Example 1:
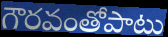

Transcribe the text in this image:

గౌరవంతోపాటు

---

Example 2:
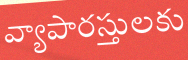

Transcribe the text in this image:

వ్యాపారస్తులకు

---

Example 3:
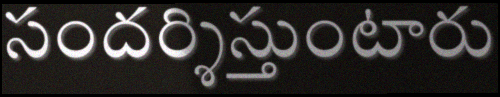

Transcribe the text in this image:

సందర్శిస్తుంటారు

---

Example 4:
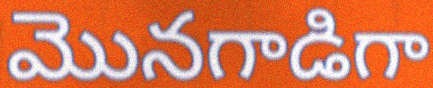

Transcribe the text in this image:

మొనగాడిగా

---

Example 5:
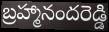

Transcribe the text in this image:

బ్రహ్మానందరెడ్డి